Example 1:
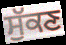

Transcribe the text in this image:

ਸੁੱਕਣ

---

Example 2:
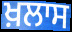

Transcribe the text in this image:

ਖ਼ਲਾਸ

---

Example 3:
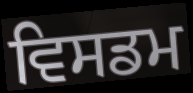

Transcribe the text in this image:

ਵਿਸਡਮ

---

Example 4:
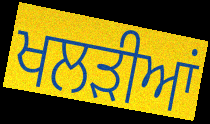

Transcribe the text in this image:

ਖਲੜੀਆਂ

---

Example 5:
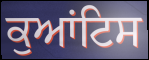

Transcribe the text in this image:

ਕੁਆਂਟਿਸ